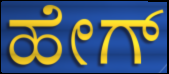
ಹೇಗ್